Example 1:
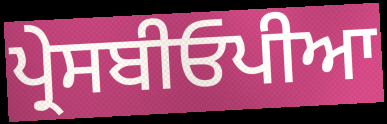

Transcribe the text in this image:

ਪ੍ਰੇਸਬੀਓਪੀਆ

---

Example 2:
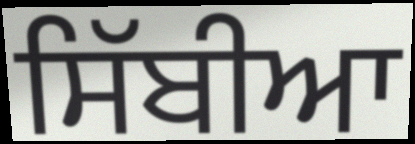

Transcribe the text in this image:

ਸਿੱਬੀਆ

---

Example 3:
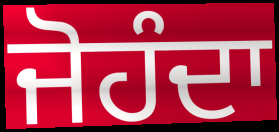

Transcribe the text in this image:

ਜੋਹੰਦਾ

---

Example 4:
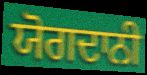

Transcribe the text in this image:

ਯੋਗਦਾਨੀ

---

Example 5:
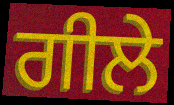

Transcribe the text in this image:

ਗੀਲੇ